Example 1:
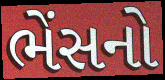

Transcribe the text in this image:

ભેંસનો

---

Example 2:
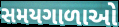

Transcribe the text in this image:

સમયગાળાઓ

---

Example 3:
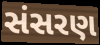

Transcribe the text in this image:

સંસરણ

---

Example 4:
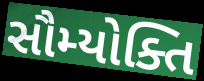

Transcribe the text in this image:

સૌમ્યોક્તિ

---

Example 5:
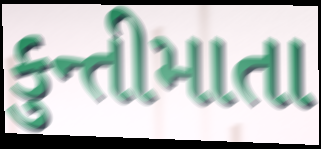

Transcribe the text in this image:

કુન્તીમાતા